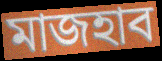
মাজহাব